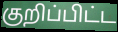
குறிப்பிட்ட